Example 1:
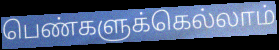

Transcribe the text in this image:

பெண்களுக்கெல்லாம்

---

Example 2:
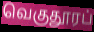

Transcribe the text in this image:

வெகுதூரப்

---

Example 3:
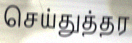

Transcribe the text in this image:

செய்துத்தர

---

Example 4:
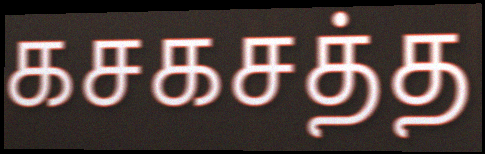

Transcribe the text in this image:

கசகசத்த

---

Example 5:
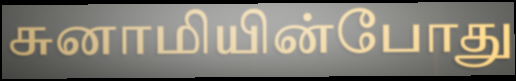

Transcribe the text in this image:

சுனாமியின்போது